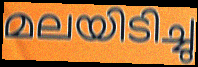
മലയിടിച്ചു